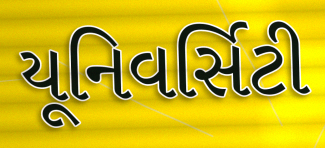
યૂનિવર્સિટી